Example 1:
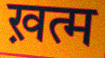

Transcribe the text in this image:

ख़त्‍म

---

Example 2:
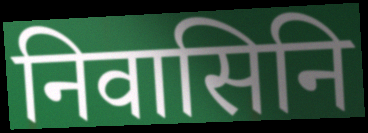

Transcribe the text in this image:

निवासिनि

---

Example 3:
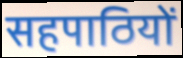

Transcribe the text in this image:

सहपाठियों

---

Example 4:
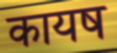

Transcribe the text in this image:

कायष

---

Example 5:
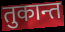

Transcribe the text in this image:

तुकान्त